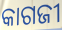
କାଗଜୀ